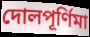
দোলপূর্ণিমা